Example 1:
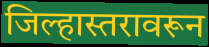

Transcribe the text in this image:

जिल्हास्तरावरून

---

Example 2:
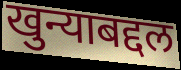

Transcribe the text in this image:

खुन्याबद्दल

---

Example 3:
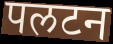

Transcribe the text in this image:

पलटन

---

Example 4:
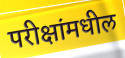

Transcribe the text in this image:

परीक्षांमधील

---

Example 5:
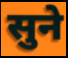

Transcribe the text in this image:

सुने